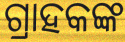
ଗ୍ରାହକଙ୍କ